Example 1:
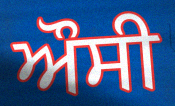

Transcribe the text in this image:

ਔਸੀ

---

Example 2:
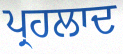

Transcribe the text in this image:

ਪ੍ਰਹਲਾਦ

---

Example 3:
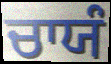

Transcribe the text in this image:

ਚਾਯੰ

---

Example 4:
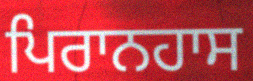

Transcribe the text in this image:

ਪਿਰਾਨਹਾਸ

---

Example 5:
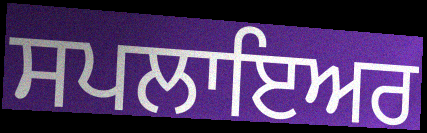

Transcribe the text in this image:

ਸਪਲਾਇਅਰ